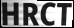
HRCT